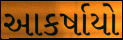
આકર્ષાયો